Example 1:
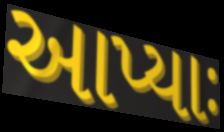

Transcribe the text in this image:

આપ્યાઃ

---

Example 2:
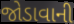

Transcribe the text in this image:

જોડાવાની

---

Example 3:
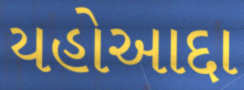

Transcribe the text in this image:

યહોઆદ્દા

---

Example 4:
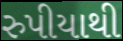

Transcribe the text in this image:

રુપીયાથી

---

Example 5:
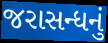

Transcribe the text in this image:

જરાસન્ધનું